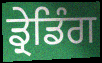
ਡ੍ਰੇਡਿੰਗ